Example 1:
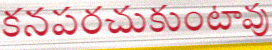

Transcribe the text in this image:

కనపరచుకుంటావు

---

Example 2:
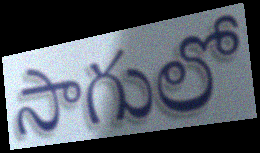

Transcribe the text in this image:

సాగులో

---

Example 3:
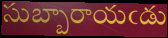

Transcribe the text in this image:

సుబ్బారాయఁడు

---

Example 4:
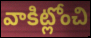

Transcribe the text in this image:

వాకిట్లోంచి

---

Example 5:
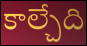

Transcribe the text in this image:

కాల్చేది